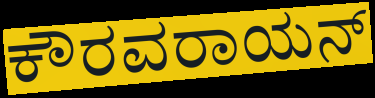
ಕೌರವರಾಯನ್